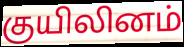
குயிலினம்